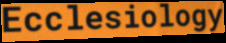
Ecclesiology